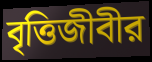
বৃত্তিজীবীর